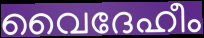
വൈദേഹീം